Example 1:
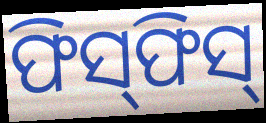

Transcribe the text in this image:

ଫିସ୍‍ଫିସ୍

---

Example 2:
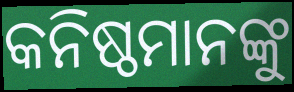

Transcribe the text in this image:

କନିଷ୍ଠମାନଙ୍କୁ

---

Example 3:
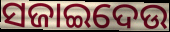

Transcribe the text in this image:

ସଜାଇଦେଉ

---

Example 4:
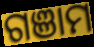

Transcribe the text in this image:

ଗଞାମ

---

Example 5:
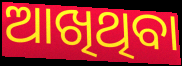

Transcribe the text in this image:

ଆଖିଥିବା